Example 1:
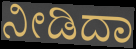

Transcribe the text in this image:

ನೀಡಿದಾ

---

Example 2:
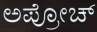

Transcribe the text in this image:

ಅಪ್ರೋಚ್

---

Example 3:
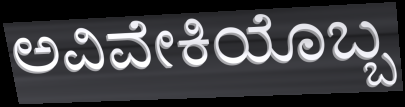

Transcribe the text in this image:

ಅವಿವೇಕಿಯೊಬ್ಬ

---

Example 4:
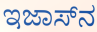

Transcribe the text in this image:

ಇಜಾಸ್‌ನ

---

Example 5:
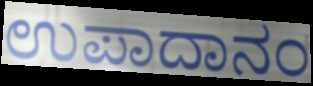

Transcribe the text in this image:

ಉಪಾದಾನಂ